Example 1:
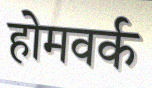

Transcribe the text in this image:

होमवर्क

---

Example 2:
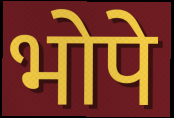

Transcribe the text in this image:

भोपे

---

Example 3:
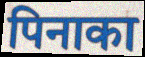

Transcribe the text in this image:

पिनाका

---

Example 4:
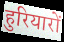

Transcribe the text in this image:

हुरियारों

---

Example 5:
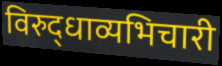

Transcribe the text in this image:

विरुद्धाव्यभिचारी